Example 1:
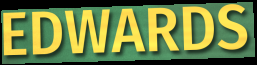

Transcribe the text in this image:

EDWARDS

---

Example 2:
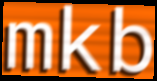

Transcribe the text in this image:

mkb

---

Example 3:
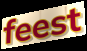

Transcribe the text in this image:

feest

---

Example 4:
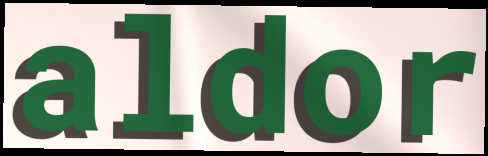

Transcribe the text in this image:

aldor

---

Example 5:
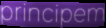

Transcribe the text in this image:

principem